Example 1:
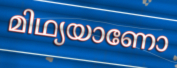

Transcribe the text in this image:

മിഥ്യയാണോ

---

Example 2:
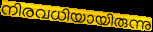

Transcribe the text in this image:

നിരവധിയായിരുന്നു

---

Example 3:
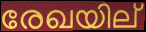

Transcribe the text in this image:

രേഖയില്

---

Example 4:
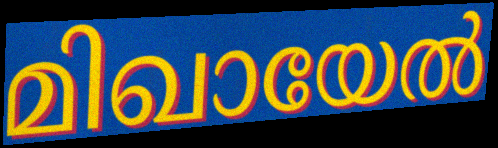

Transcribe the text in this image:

മിഖായേൽ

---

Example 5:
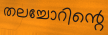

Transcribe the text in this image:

തലച്ചോറിന്റെ